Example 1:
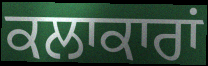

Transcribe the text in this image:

ਕਲਾਕਾਰਾਂ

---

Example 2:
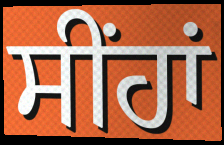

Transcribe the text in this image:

ਸੀਂਹਾਂ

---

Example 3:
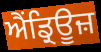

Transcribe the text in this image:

ਐਂਡ੍ਰਿਊਜ਼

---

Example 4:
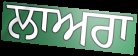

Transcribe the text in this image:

ਲਾਅਰਾ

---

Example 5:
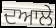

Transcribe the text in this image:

ਦਆਲੇ